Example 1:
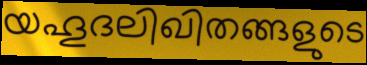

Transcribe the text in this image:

യഹൂദലിഖിതങ്ങളുടെ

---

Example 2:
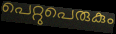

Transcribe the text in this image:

പെറ്റുപെരുകും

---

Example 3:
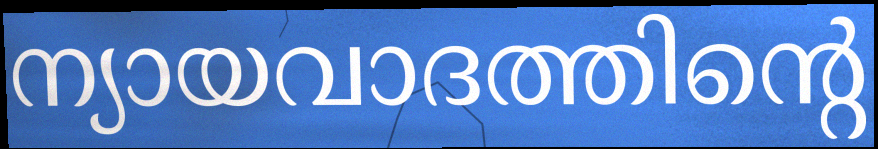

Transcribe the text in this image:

ന്യായവാദത്തിന്റെ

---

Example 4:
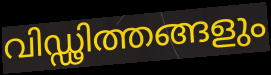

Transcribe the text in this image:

വിഡ്ഢിത്തങ്ങളും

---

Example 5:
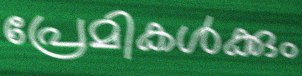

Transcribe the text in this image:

പ്രേമികൾക്കും